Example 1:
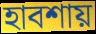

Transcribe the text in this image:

হাবশায়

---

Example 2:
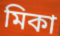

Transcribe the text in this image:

মিকা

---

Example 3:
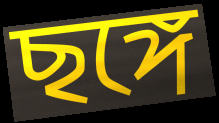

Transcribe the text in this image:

ছঙ্গে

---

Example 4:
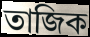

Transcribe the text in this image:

তাজিক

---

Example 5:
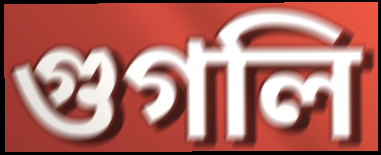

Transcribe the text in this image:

গুগলি